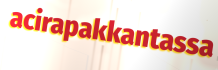
acirapakkantassa